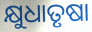
କ୍ଷୁଧାତୃଷା